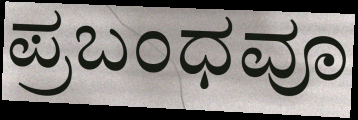
ಪ್ರಬಂಧವೂ